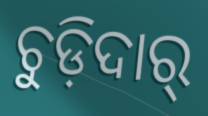
ଚୁଡ଼ିଦାର୍